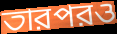
তারপরও